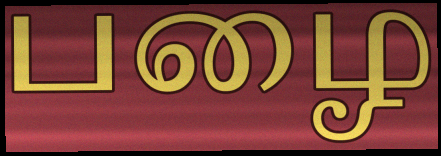
பழை